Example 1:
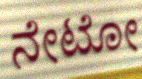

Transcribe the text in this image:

ನೇಟೋ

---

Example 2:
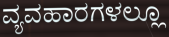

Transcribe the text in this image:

ವ್ಯವಹಾರಗಳಲ್ಲೂ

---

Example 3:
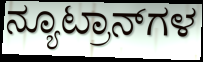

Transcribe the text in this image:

ನ್ಯೂಟ್ರಾನ್‌ಗಳ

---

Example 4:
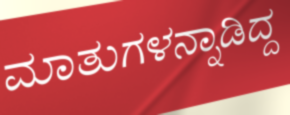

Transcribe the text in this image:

ಮಾತುಗಳನ್ನಾಡಿದ್ದ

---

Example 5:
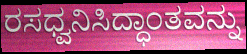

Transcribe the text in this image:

ರಸಧ್ವನಿಸಿದ್ಧಾಂತವನ್ನು